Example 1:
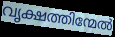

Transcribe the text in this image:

വൃക്ഷത്തിന്മേൽ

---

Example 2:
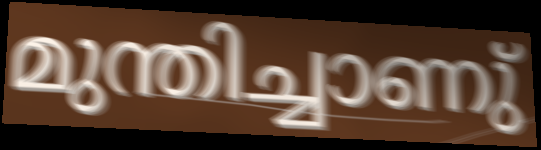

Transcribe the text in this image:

മുന്തിച്ചാണു്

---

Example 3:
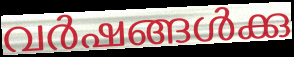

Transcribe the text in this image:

വർഷങ്ങൾക്കു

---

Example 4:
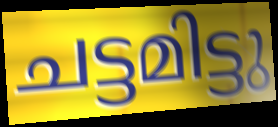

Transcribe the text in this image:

ചട്ടമിട്ടു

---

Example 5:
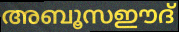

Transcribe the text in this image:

അബൂസഈദ്